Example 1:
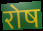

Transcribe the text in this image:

रोष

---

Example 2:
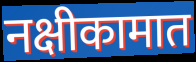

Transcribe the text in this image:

नक्षीकामात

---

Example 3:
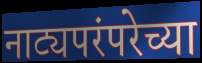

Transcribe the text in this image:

नाट्यपरंपरेच्या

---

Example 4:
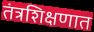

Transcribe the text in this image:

तंत्रशिक्षणात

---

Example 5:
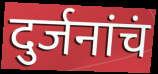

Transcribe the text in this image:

दुर्जनांचं